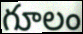
గూలం